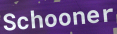
Schooner